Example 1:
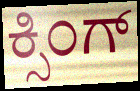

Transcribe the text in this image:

ಕ್ಸಿಂಗ್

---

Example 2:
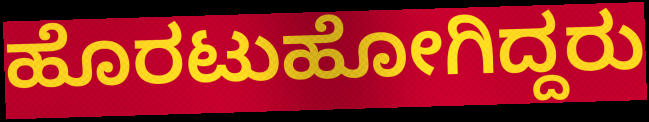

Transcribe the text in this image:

ಹೊರಟುಹೋಗಿದ್ದರು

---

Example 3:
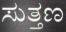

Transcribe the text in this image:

ಸುತ್ತಣ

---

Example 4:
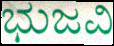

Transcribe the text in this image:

ಭುಜವಿ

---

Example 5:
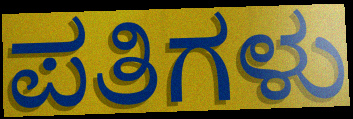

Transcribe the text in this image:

ಪತಿಗಳು